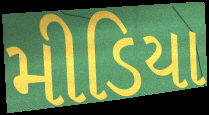
મીડિયા